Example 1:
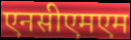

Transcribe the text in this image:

एनसीएमएम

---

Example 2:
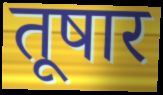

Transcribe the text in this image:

तूषार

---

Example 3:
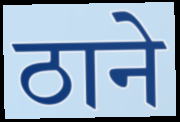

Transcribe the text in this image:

ठाने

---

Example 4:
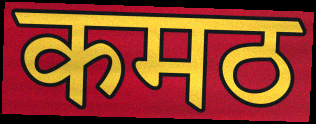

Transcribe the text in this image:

कमठ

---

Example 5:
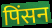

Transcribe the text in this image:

पिंसन